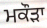
ਮਕੌੜਾ